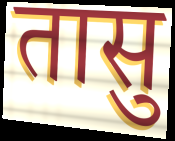
तासु